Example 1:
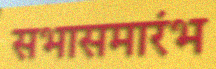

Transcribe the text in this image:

सभासमारंभ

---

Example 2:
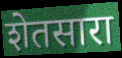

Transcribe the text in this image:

शेतसारा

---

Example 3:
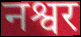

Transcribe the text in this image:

नश्वर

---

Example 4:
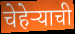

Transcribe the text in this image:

चेहेऱ्याची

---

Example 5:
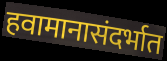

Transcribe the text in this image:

हवामानासंदर्भात